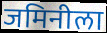
जमिनीला